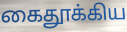
கைதூக்கிய